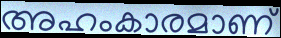
അഹംകാരമാണ്